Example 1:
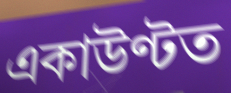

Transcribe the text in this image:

একাউণ্টত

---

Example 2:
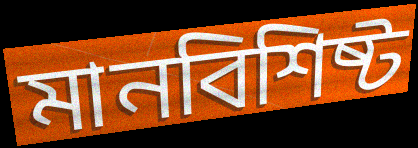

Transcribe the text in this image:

মানবিশিষ্ট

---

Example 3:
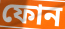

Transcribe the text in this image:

ফোন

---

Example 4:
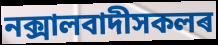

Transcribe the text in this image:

নক্সালবাদীসকলৰ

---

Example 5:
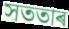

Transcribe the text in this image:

সততাৰ